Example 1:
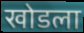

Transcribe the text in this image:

खोडला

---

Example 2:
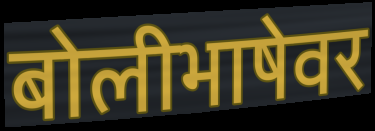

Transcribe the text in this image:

बोलीभाषेवर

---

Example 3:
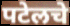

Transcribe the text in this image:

पटेलचे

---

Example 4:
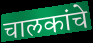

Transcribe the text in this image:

चालकांचे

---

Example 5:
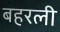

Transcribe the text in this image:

बहरली